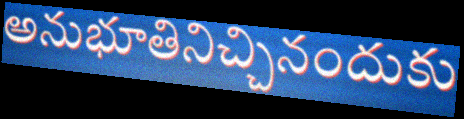
అనుభూతినిచ్చినందుకు